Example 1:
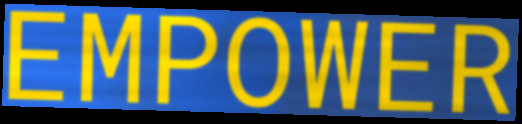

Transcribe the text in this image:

EMPOWER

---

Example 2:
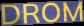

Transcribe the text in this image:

DROM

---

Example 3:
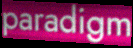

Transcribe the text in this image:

paradigm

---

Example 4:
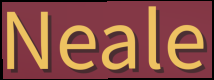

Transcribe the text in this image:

Neale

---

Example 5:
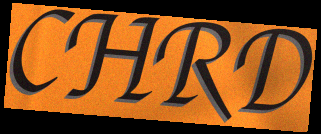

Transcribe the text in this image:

CHRD